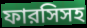
ফারসিসহ